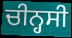
ਚੀਨ੍ਹ੍ਹਸੀ